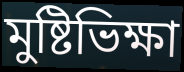
মুষ্টিভিক্ষা